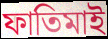
ফাতিমাই